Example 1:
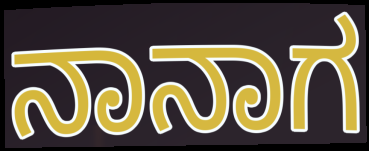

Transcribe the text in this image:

ನಾನಾಗ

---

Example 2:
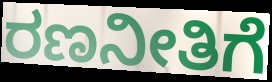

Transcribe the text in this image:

ರಣನೀತಿಗೆ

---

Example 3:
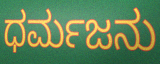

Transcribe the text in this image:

ಧರ್ಮಜನು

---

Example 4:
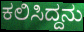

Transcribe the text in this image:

ಕಲಿಸಿದ್ದನು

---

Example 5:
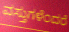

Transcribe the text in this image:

ವಸ್ತುಗಳೆಂದರೆ